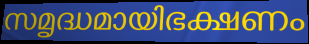
സമൃദ്ധമായിഭക്ഷണം